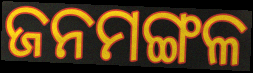
ଜନମଙ୍ଗଳ